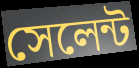
সেলেন্ট